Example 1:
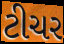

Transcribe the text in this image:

ટીચર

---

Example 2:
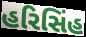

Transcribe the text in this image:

હરિસિંહ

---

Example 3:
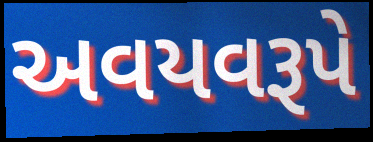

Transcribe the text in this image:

અવયવરૂપે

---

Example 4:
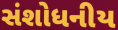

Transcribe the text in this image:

સંશોધનીય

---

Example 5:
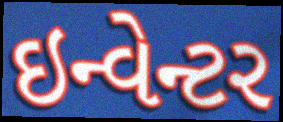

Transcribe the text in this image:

ઇન્વેન્ટર